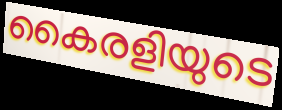
കൈരളിയുടെ